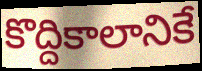
కొద్దికాలానికే